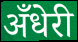
अँधेरी